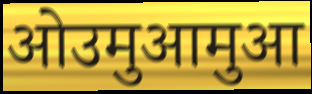
ओउमुआमुआ